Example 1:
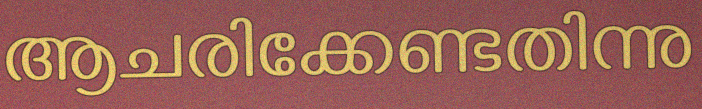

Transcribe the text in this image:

ആചരിക്കേണ്ടതിന്നു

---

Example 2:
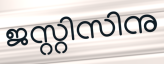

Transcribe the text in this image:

ജസ്റ്റിസിനു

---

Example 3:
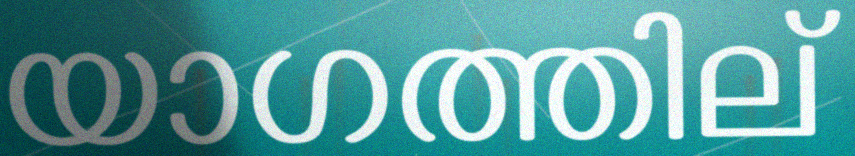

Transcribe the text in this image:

യാഗത്തില്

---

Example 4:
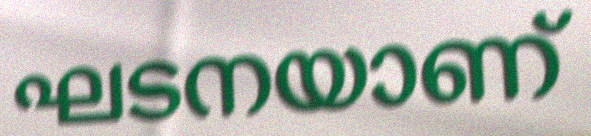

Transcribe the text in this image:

ഘടനയാണ്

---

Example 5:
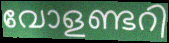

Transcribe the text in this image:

വോളണ്ടറി